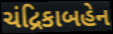
ચંદ્રિકાબહેન